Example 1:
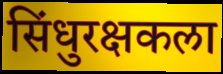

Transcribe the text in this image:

सिंधुरक्षकला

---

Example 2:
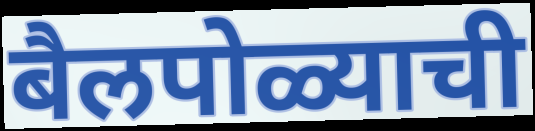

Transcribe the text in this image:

बैलपोळ्याची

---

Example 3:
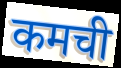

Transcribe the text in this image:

कमची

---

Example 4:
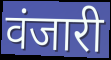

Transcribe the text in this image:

वंजारी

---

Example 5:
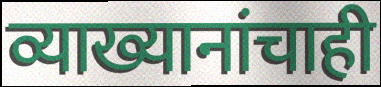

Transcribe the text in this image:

व्याख्यानांचाही